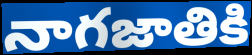
నాగజాతికి